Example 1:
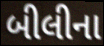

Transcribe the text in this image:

બીલીના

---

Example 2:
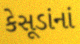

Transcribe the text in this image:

કેસૂડાંનાં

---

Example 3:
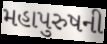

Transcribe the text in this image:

મહાપુરુષની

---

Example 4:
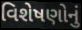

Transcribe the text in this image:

વિશેષણોનું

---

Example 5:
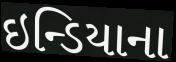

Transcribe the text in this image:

ઇન્ડિયાના